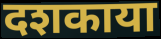
दशकाया